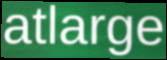
atlarge